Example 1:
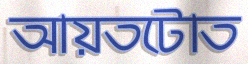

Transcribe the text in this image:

আয়তটোত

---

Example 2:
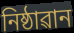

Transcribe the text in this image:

নিষ্ঠাৱান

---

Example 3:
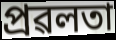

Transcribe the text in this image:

প্ৰৱলতা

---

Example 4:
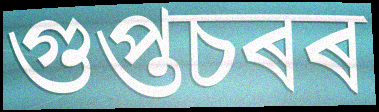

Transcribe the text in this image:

গুপ্তচৰৰ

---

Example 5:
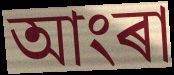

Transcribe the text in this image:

আংৰা